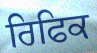
ਰਿਫਿਕ